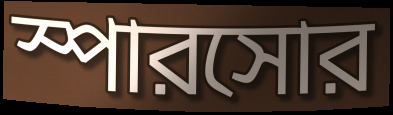
স্পারসোর